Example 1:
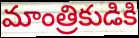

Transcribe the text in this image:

మాంత్రికుడికి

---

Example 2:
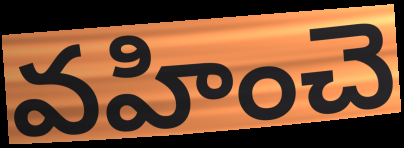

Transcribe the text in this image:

వహించె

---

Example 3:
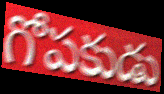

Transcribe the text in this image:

గోపకుడు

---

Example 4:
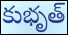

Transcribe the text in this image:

కుభృత్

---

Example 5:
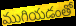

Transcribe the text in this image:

ముగియడంతో